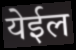
येईल